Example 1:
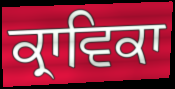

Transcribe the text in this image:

ਕ੍ਰਾਵਿਕਾ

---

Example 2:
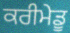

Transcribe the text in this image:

ਕਰੀਮੇਡੂ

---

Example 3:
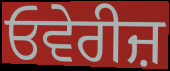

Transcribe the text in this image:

ਓਵੇਰੀਜ਼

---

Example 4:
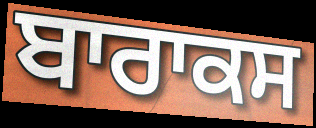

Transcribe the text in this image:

ਬਾਰਾਕਸ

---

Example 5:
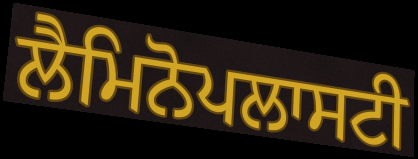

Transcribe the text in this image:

ਲੈਮਿਨੋਪਲਾਸਟੀ